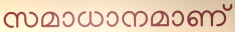
സമാധാനമാണ്